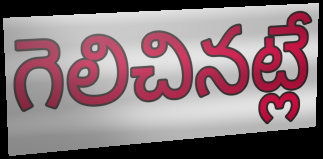
గెలిచినట్లే